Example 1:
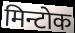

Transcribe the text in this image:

मिन्टोक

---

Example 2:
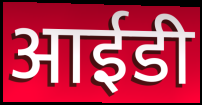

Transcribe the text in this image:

आईडी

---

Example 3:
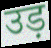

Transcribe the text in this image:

उड़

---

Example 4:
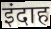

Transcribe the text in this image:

इंदाह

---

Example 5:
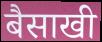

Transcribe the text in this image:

बैसाखी